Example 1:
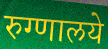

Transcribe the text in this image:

रुग्णालये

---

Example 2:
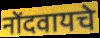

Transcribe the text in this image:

नोंदवायचे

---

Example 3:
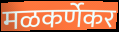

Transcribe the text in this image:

मळकर्णेकर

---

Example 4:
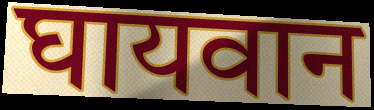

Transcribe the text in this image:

घायवान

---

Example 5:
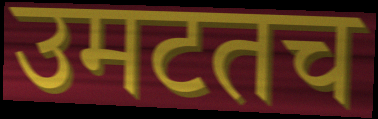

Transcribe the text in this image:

उमटतच